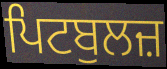
ਪਿਟਬੁਲਜ਼